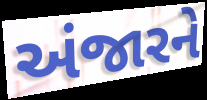
અંજારને